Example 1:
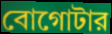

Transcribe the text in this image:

বোগোটার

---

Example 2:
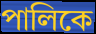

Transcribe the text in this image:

পালিকে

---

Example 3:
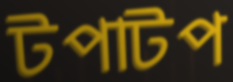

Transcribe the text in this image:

টপাটপ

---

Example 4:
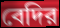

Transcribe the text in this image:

বেদির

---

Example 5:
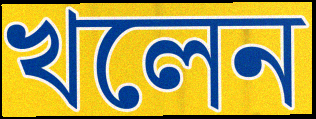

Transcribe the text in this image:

খলেন